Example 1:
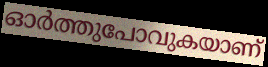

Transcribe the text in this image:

ഓർത്തുപോവുകയാണ്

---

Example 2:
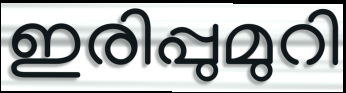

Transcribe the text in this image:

ഇരിപ്പുമുറി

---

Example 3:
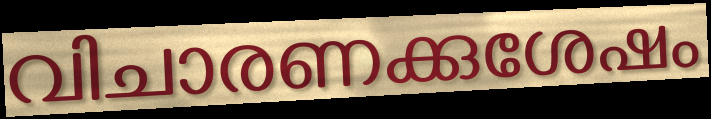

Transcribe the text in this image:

വിചാരണക്കുശേഷം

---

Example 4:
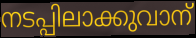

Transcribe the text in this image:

നടപ്പിലാക്കുവാന്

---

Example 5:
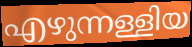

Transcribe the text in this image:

എഴുന്നള്ളിയ